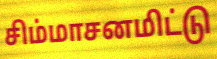
சிம்மாசனமிட்டு